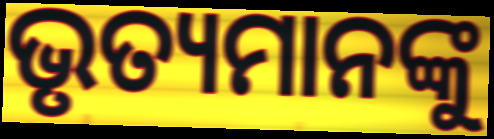
ଭୃତ୍ୟମାନଙ୍କୁ